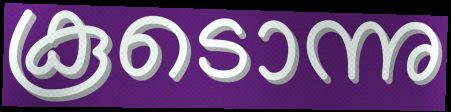
കൂടൊന്നു